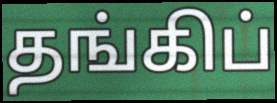
தங்கிப்